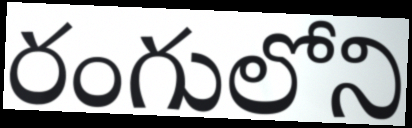
రంగులోని